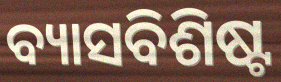
ବ୍ୟାସବିଶିଷ୍ଟ